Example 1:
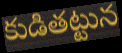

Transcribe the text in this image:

కుడితట్టున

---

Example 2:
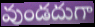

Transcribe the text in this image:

వుండదుగా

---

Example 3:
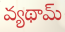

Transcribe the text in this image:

వ్యథామ్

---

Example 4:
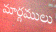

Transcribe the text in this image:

మార్గములు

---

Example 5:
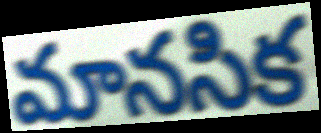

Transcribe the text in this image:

మానసిక